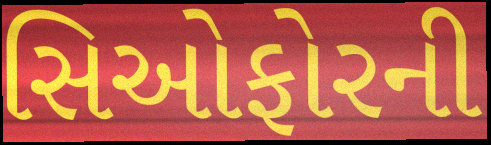
સિઓફોરની